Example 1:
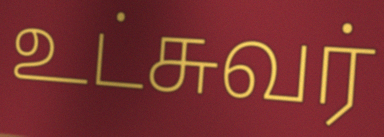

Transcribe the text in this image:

உட்சுவர்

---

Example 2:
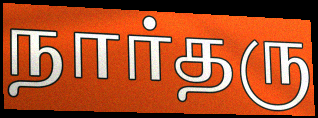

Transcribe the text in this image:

நார்தரு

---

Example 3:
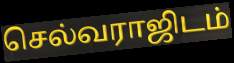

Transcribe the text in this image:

செல்வராஜிடம்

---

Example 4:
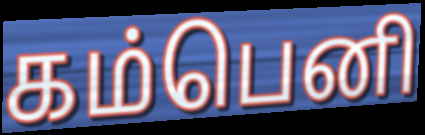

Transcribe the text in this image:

கம்பெனி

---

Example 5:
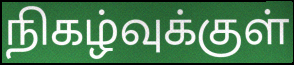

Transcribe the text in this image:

நிகழ்வுக்குள்